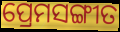
ପ୍ରେମସଙ୍ଗୀତ